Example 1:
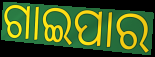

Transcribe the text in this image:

ଗାଇପାର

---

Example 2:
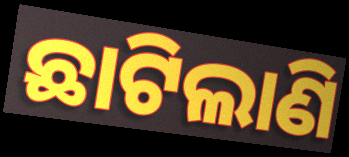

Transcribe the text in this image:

ଛାଟିଲାଣି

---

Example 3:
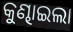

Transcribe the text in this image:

କୁଣ୍ଢାଇଲା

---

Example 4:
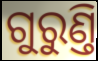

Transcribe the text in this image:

ଗୁରୁଣ୍ତି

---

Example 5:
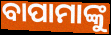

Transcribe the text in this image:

ବାପାମାଙ୍କୁ